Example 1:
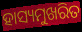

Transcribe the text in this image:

ହାସ୍ୟମୁଖରିତ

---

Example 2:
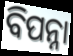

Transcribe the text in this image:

ବିପନ୍ନା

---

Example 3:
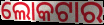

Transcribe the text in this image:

ଲୋକଟାର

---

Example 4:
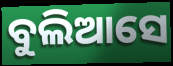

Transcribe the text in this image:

ବୁଲିଆସେ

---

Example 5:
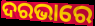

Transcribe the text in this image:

ଦରଭାରେ